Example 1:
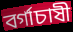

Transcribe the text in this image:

বর্গাচাষী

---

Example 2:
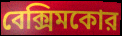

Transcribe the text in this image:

বেক্সিমকোর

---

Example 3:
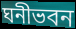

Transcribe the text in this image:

ঘনীভবন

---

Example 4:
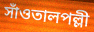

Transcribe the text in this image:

সাঁওতালপল্লী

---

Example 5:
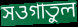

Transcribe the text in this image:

সওগাতুল